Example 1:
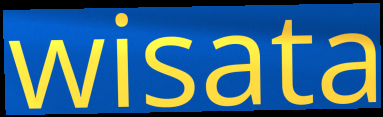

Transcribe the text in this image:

wisata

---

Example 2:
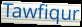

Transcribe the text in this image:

Tawfiqur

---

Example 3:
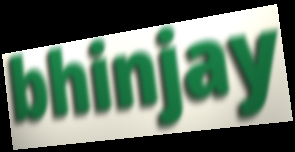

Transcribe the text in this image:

bhinjay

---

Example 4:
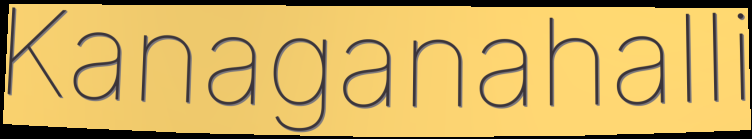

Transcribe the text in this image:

Kanaganahalli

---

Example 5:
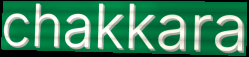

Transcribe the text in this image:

chakkara